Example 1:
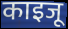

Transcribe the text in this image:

काइजू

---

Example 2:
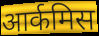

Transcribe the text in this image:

आर्कमिस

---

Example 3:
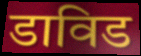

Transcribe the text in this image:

डाविड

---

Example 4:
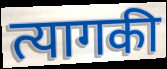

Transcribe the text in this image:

त्यागकी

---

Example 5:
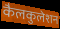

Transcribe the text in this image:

कैलकुलेशन